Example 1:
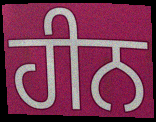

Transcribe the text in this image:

ਹੀਨ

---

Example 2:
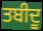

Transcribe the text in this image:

ਤਬੀਦੂ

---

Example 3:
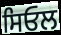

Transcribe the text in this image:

ਸਿਓਲ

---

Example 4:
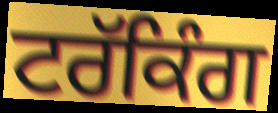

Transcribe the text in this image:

ਟਰੱਕਿੰਗ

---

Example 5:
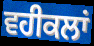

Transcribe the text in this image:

ਵਹੀਕਲਾਂ